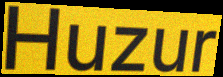
Huzur